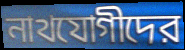
নাথযোগীদের